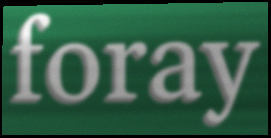
foray